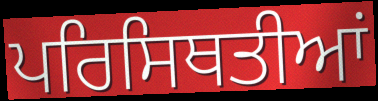
ਪਰਿਸਿਥਤੀਆਂ